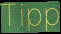
Tipp